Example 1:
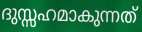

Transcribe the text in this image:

ദുസ്സഹമാകുന്നത്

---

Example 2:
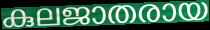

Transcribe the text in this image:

കുലജാതരായ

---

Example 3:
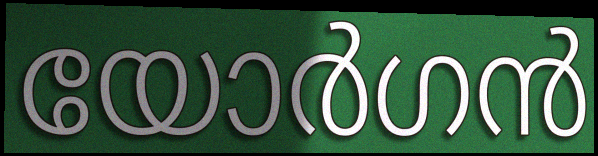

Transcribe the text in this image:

യോർഗൻ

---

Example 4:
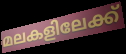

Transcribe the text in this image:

മലകളിലേക്ക്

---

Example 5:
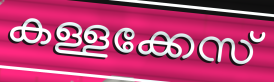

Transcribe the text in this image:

കള്ളക്കേസ്